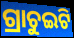
ଗ୍ରାଚୁଇଟି